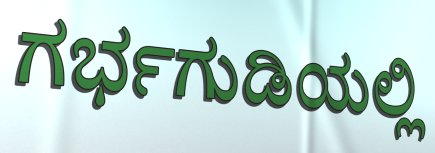
ಗರ್ಭಗುಡಿಯಲ್ಲಿ